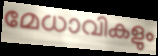
മേധാവികളും